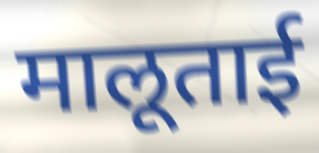
मालूताई